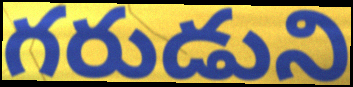
గరుడుని